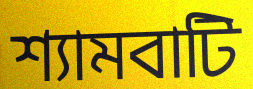
শ্যামবাটি